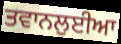
ਤਵਾਨਲੁਈਆ